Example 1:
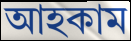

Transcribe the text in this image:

আহকাম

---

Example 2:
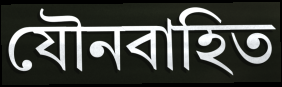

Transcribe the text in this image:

যৌনবাহিত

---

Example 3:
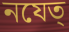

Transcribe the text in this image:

নযেত্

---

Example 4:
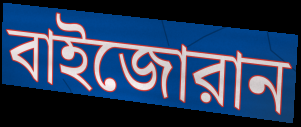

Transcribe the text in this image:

বাইজোরান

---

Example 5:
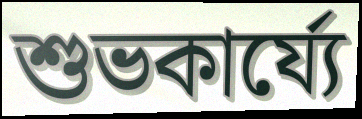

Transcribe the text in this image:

শুভকার্য্যে